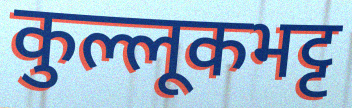
कुल्लूकभट्ट